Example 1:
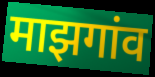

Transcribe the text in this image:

माझगांव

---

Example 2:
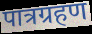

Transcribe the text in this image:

पात्रग्रहण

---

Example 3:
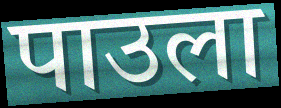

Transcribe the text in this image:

पाउला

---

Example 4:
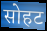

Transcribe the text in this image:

सोहट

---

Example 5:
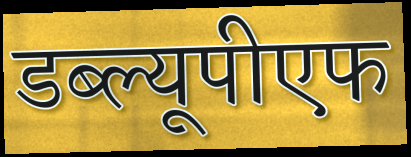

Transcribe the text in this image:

डब्ल्यूपीएफ